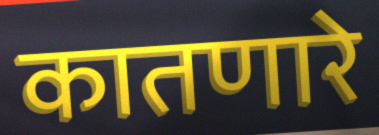
कातणारे